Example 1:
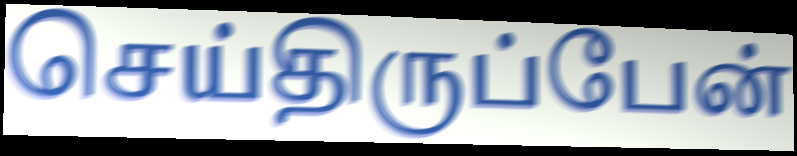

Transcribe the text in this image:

செய்திருப்பேன்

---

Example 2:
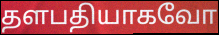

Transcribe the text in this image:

தளபதியாகவோ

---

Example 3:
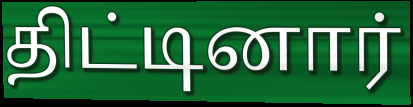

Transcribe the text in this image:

திட்டினார்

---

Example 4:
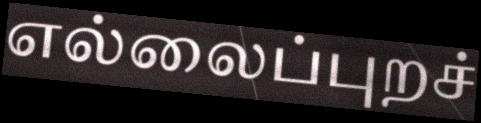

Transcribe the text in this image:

எல்லைப்புறச்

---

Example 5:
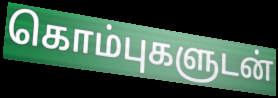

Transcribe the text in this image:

கொம்புகளுடன்